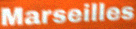
Marseilles